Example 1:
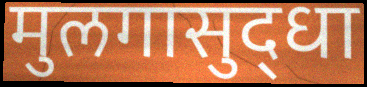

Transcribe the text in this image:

मुलगासुद्धा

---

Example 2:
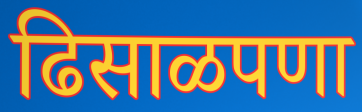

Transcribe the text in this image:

ढिसाळपणा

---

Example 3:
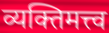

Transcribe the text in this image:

व्यक्तिमत्त्व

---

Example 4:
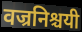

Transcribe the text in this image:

वज्रनिश्चयी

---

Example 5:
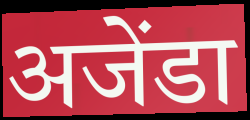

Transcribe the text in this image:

अजेंडा